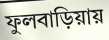
ফুলবাড়িয়ায়